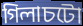
গিলাচটো